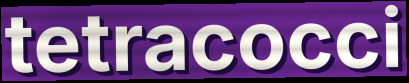
tetracocci